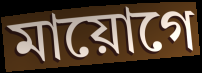
মায়োগে